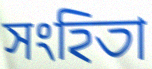
সংহিতা